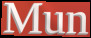
Mun